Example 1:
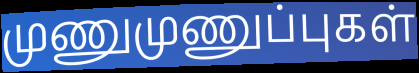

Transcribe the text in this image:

முணுமுணுப்புகள்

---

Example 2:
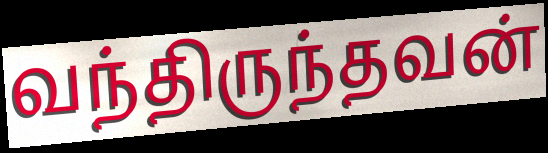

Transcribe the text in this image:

வந்திருந்தவன்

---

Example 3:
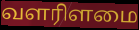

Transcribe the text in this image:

வளரிளமை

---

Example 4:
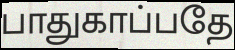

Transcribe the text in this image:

பாதுகாப்பதே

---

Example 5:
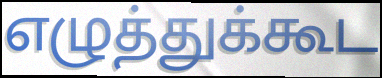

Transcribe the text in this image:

எழுத்துக்கூட